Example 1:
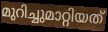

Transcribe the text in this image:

മുറിച്ചുമാറ്റിയത്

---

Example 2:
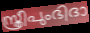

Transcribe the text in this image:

സ്ത്രീപുംഭിദാ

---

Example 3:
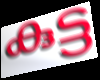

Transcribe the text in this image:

കുട്ട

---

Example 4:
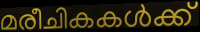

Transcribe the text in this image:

മരീചികകൾക്ക്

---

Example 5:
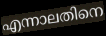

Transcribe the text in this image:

എന്നാലതിനെ